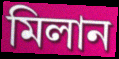
মিলান